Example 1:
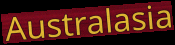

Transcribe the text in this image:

Australasia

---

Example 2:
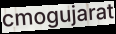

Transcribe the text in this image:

cmogujarat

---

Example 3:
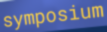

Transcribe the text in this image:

symposium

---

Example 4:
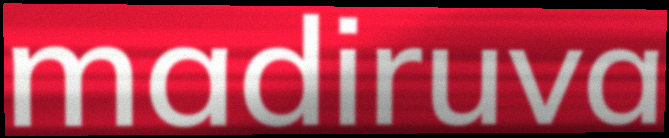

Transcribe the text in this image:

madiruva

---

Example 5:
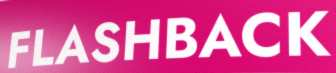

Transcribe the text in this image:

FLASHBACK